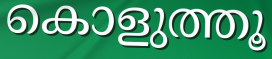
കൊളുത്തൂ